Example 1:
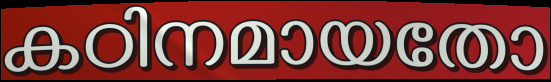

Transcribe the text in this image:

കഠിനമായതോ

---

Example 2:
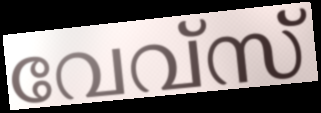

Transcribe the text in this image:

വേവ്സ്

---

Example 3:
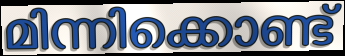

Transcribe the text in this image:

മിന്നിക്കൊണ്ട്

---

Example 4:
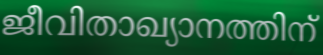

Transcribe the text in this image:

ജീവിതാഖ്യാനത്തിന്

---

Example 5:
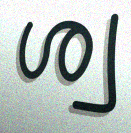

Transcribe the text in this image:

ശ്വ